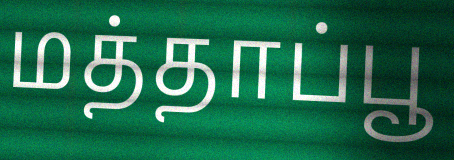
மத்தாப்பூ